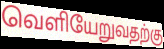
வெளியேறுவதற்கு